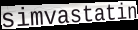
simvastatin